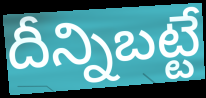
దీన్నిబట్టే